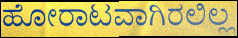
ಹೋರಾಟವಾಗಿರಲಿಲ್ಲ